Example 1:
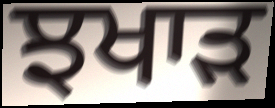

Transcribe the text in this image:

ਝਖਾੜ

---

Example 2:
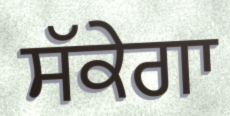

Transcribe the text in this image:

ਸੱਕੇਗਾ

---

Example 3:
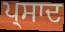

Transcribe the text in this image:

ਪ੍ਸਾਦ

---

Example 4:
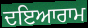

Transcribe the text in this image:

ਦਇਆਰਾਮ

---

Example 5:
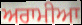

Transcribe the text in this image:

ਅਰਾਮੀਆ